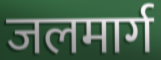
जलमार्ग